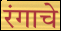
रंगाचे